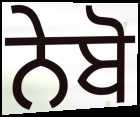
ਨੇਬੋ